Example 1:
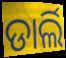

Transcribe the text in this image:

ଡାର୍ଲି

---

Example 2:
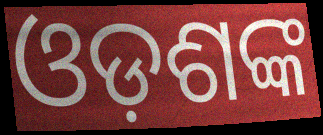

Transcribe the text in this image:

ଓଡ଼ଶଙ୍କ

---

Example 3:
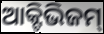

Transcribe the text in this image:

ଆକ୍ଟିଭିଜମ୍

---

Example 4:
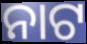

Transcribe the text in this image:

ନାଟ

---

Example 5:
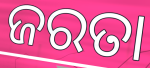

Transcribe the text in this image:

ଜରତା